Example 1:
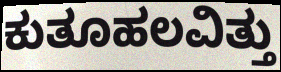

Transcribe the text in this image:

ಕುತೂಹಲವಿತ್ತು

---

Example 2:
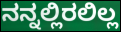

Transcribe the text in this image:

ನನ್ನಲ್ಲಿರಲಿಲ್ಲ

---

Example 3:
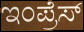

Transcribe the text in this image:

ಇಂಪ್ರೆಸ್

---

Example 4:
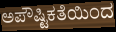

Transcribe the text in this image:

ಅಪೌಷ್ಟಿಕತೆಯಿಂದ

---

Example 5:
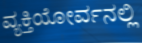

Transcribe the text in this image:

ವ್ಯಕ್ತಿಯೋರ್ವನಲ್ಲಿ